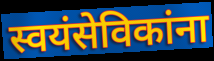
स्वयंसेविकांना